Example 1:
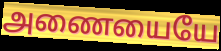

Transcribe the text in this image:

அணையையே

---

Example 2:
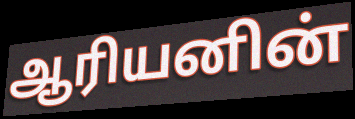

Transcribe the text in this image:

ஆரியனின்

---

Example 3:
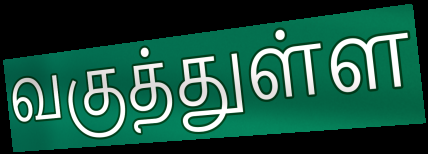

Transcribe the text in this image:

வகுத்துள்ள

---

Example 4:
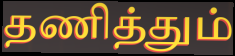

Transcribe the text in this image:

தணித்தும்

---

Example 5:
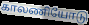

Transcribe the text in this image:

காலணியோடு